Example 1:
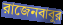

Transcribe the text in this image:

রাজেনবাবুর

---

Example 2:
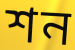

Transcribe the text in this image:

শন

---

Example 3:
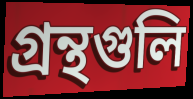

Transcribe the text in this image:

গ্রন্থগুলি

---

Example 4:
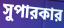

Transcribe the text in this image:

সুপারকার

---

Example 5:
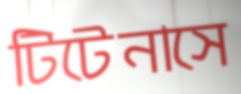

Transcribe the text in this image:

টিটেনাসে